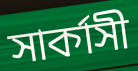
সার্কাসী